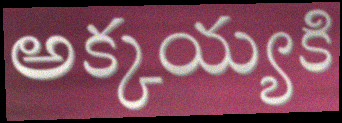
అక్కయ్యకి